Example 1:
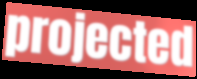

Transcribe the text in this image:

projected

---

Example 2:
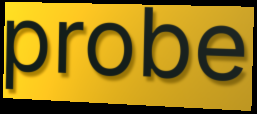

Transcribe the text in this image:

probe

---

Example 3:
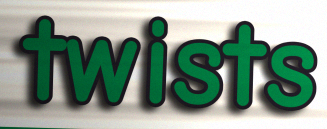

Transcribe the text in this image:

twists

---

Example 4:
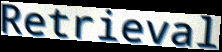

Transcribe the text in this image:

Retrieval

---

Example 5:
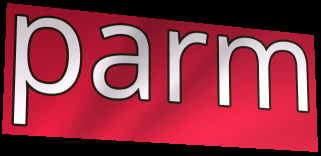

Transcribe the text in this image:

parm